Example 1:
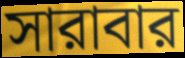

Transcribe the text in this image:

সারাবার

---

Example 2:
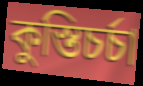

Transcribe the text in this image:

কুস্তিচর্চা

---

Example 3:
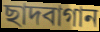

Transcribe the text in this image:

ছাদবাগান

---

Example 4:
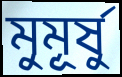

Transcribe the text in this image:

মুমূর্ষু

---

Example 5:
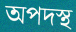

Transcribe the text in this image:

অপদস্থ